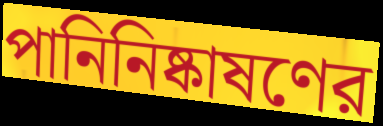
পানিনিষ্কাষণের